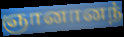
ஞானானந்